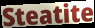
Steatite